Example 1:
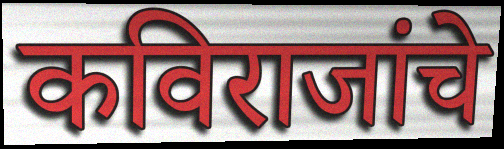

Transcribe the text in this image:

कविराजांचे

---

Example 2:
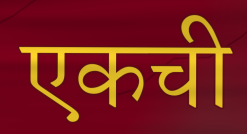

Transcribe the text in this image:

एकची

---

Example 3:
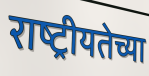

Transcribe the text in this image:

राष्ट्रीयतेच्या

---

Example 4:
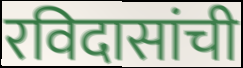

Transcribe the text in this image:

रविदासांची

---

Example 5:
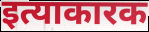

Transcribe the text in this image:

इत्याकारक